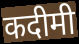
कदीमी